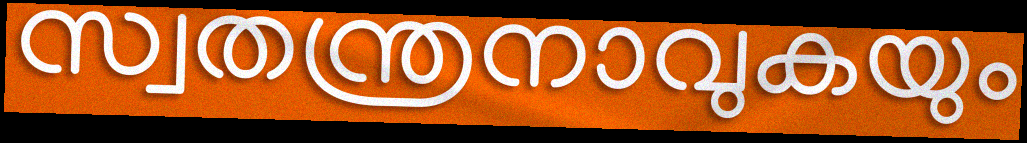
സ്വതന്ത്രനാവുകയും